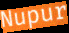
Nupur